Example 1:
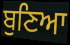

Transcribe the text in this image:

ਬੁਣਿਆ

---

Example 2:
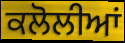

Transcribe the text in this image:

ਕਲੋਲੀਆਂ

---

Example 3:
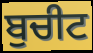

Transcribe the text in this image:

ਬੁਚੀਟ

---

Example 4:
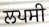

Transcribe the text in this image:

ਲਪਸੀ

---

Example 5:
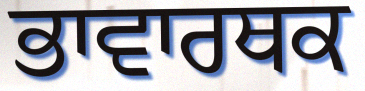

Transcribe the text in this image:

ਭਾਵਾਰਥਕ